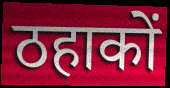
ठहाकों